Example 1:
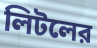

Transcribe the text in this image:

লিটলের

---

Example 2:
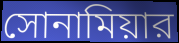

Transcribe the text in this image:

সোনামিয়ার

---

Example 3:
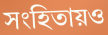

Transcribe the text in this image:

সংহিতায়ও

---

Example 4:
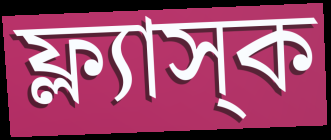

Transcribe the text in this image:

ফ্ল্যাস্‌ক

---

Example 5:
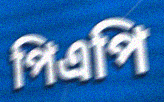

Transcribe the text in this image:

পিএপি